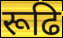
रूढि